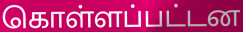
கொள்ளப்பட்டன